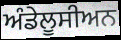
ਅੰਡੇਲੂਸੀਅਨ